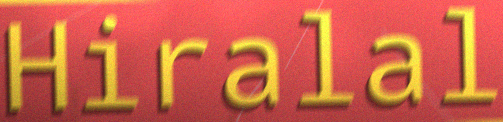
Hiralal